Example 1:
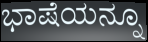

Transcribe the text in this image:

ಭಾಷೆಯನ್ನೂ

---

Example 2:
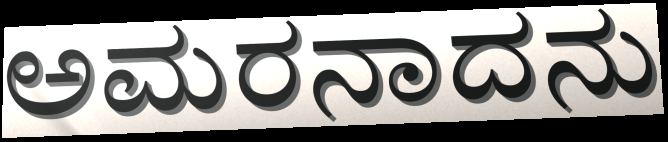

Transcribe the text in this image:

ಅಮರನಾದನು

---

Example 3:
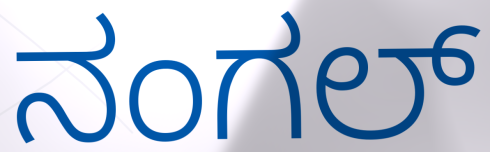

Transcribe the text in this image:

ನಂಗಲ್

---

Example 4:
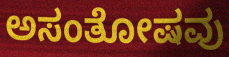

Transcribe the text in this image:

ಅಸಂತೋಷವು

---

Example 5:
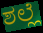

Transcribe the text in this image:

ಶಲ್ಲೆ